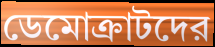
ডেমোক্রাটদের